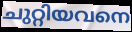
ചുറ്റിയവനെ